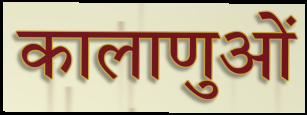
कालाणुओं